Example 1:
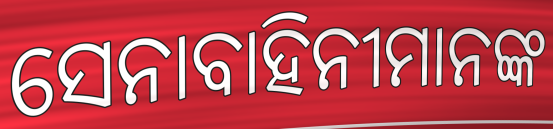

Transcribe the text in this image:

ସେନାବାହିନୀମାନଙ୍କ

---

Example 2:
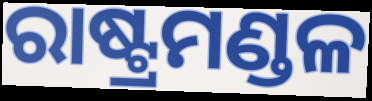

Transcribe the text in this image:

ରାଷ୍ଟ୍ରମଣ୍ଡଳ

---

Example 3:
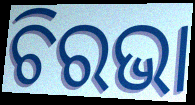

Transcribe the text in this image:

ଚିରଭା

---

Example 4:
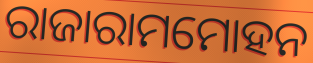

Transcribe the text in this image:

ରାଜାରାମମୋହନ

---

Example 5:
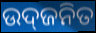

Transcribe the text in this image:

ଉଦ୍‌ଜନିତ